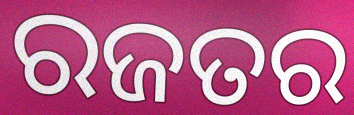
ରଜତର